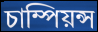
চাম্পিয়ন্স